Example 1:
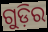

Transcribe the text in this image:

ଗୁଡ଼ିର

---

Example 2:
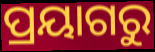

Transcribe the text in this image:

ପ୍ରୟାଗରୁ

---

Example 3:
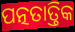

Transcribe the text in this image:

ପତ୍ନତାତ୍ତିକ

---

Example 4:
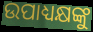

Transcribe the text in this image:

ଉପାଧ୍ୟକ୍ଷଙ୍କୁ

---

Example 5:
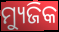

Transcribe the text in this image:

ମ୍ୟୁଜିକ